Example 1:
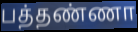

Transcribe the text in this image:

பத்தண்ணா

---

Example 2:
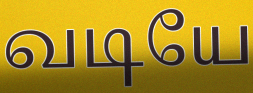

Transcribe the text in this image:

வடியே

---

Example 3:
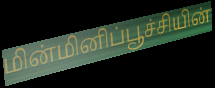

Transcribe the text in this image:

மின்மினிப்பூச்சியின்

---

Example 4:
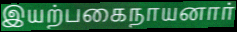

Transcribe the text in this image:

இயற்பகைநாயனார்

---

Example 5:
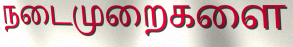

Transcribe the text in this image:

நடைமுறைகளை